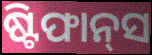
ଷ୍ଟିଫାନ୍‍ସ